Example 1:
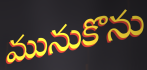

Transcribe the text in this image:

మునుకొను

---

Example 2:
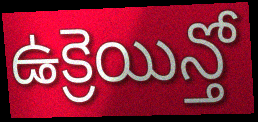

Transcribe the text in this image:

ఉక్రెయిన్తో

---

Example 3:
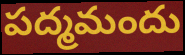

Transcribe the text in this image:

పద్మమందు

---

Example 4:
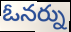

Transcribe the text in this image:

ఓనర్ను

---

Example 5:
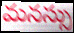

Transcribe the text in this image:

మనస్సు